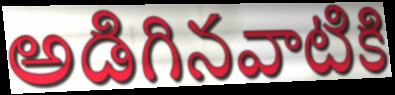
అడిగినవాటికి